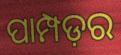
ପାମ୍ପଡ଼ର